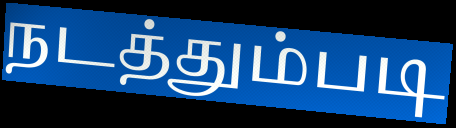
நடத்தும்படி